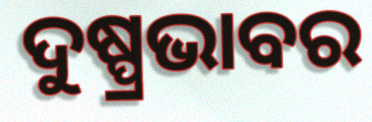
ଦୁଷ୍ପ୍ରଭାବର